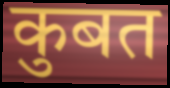
कुबत